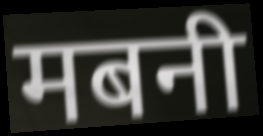
मबनी